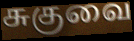
சுகுவை